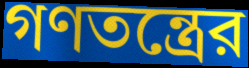
গণতন্ত্রের